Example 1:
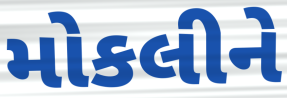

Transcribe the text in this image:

મોકલીને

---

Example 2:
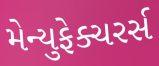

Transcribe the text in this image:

મેન્યુફેક્ચરર્સ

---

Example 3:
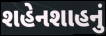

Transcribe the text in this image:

શહેનશાહનું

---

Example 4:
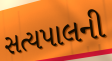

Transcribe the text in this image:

સત્યપાલની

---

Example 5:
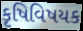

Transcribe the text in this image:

કૃષિવિષયક